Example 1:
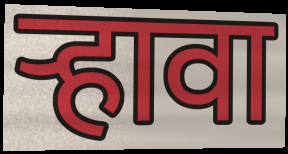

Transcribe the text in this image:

ऱ्हावा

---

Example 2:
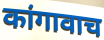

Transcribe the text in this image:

कांगावाच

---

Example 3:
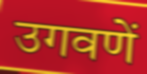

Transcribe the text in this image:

उगवणें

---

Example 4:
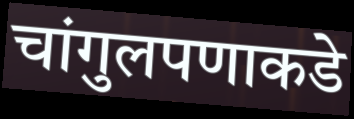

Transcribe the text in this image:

चांगुलपणाकडे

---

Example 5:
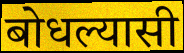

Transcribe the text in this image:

बोधल्यासी